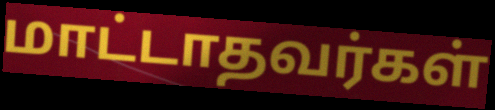
மாட்டாதவர்கள்